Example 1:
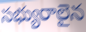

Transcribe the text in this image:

సభ్యురాలైన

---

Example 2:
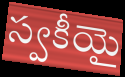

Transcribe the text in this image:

స్వకీయై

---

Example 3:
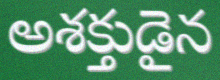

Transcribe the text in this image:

అశక్తుడైన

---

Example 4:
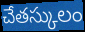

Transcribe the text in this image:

చేతస్కులం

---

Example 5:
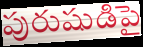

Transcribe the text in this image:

పురుషుడిపై